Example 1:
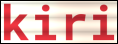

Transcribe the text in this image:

kiri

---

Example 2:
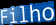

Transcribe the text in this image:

Filho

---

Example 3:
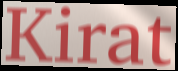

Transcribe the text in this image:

Kirat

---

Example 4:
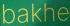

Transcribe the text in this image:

bakhe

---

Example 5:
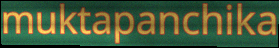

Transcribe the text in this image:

muktapanchika